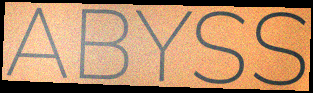
ABYSS